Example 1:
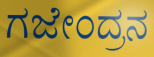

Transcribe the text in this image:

ಗಜೇಂದ್ರನ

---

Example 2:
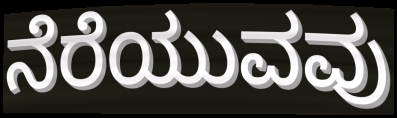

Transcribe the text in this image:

ನೆರೆಯುವವು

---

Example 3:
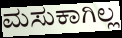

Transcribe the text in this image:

ಮಸುಕಾಗಿಲ್ಲ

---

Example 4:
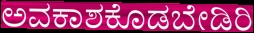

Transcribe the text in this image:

ಅವಕಾಶಕೊಡಬೇಡಿರಿ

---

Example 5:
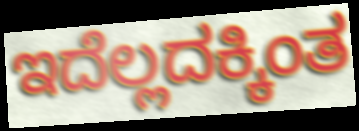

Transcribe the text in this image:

ಇದೆಲ್ಲದಕ್ಕಿಂತ